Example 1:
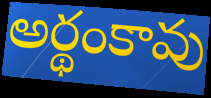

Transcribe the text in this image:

అర్థంకావు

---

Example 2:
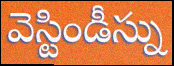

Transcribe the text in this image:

వెస్టిండీస్ను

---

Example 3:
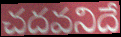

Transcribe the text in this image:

చదవనిదే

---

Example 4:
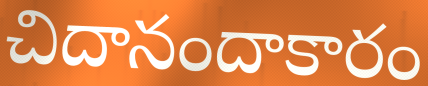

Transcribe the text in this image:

చిదానందాకారం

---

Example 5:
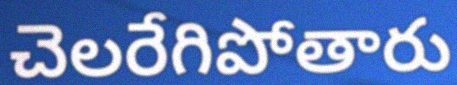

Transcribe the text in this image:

చెలరేగిపోతారు